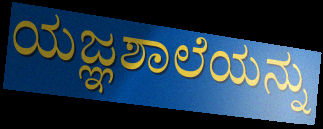
ಯಜ್ಞಶಾಲೆಯನ್ನು